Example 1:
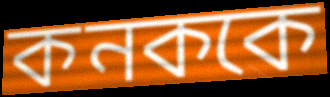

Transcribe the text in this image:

কনককে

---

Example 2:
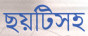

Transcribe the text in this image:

ছয়টিসহ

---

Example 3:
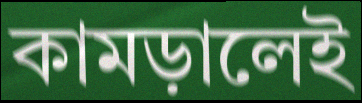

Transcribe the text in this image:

কামড়ালেই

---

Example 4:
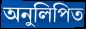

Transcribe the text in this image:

অনুলিপিত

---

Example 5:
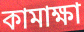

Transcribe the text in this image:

কামাক্ষা